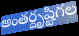
అంతర్దృష్టిగల